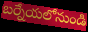
బర్నేయలోనుండి